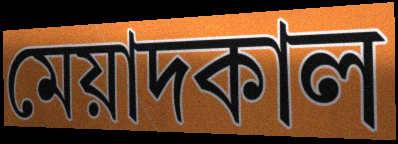
মেয়াদকাল